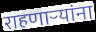
राहणाऱ्यांना